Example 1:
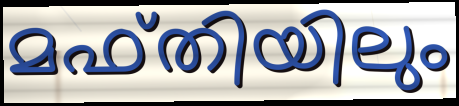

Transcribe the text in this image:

മഫ്തിയിലും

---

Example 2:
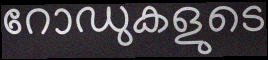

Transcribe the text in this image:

റോഡുകളുടെ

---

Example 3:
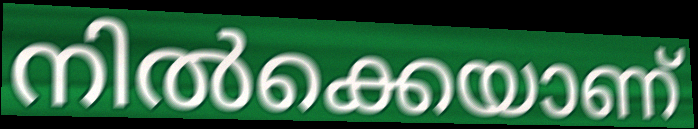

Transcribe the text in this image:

നിൽക്കെയാണ്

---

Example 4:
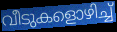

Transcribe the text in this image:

വീടുകളൊഴിച്ച്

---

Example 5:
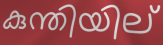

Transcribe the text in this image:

കുന്തിയില്